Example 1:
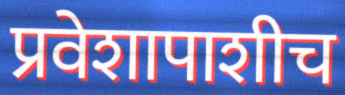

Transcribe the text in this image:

प्रवेशापाशीच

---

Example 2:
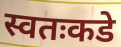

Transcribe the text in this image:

स्वतःकडे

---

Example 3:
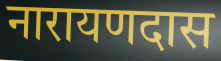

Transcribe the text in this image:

नारायणदास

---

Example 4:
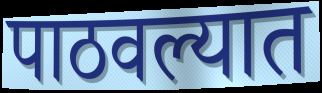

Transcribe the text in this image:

पाठवल्यात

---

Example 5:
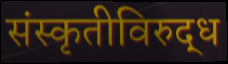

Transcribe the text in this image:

संस्कृतीविरुद्ध